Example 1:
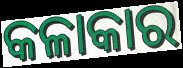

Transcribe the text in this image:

କଳାକାର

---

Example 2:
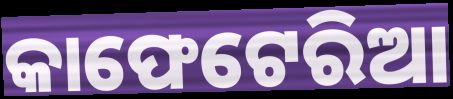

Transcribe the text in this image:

କାଫେଟେରିଆ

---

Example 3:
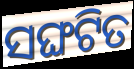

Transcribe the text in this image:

ସଙ୍ଘଟିତ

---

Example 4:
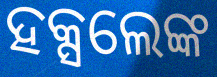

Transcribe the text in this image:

ହକ୍ସଲେଙ୍କ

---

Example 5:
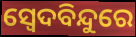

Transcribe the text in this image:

ସ୍ୱେଦବିନ୍ଦୁରେ